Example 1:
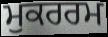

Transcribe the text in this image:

ਮੁਕਰਰਮ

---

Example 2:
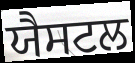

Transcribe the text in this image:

ਯੈਸਟਲ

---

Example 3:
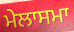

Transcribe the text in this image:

ਮੇਲਾਸਮਾ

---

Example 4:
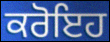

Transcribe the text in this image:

ਕਰੋਇਹ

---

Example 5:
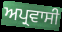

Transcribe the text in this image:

ਅਪ੍ਰਵਾਸੀ